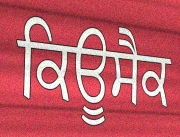
ਕਿਊਸੈਕ